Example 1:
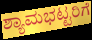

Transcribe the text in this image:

ಶ್ಯಾಮಭಟ್ಟರಿಗೆ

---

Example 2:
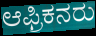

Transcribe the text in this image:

ಆಫ್ರಿಕನರು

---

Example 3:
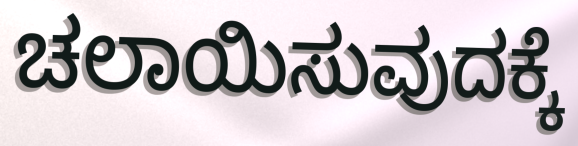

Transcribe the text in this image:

ಚಲಾಯಿಸುವುದಕ್ಕೆ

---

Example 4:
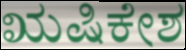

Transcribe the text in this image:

ಋಷಿಕೇಶ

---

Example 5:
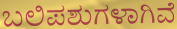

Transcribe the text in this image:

ಬಲಿಪಶುಗಳಾಗಿವೆ